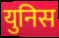
युनिस